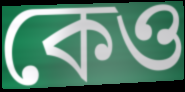
কেও